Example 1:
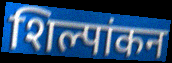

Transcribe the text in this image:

शिल्पांकन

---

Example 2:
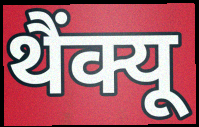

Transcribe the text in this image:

थैंक्यू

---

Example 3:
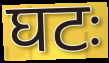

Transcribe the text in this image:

घटः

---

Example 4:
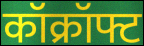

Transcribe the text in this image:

कॉक्रॉफ्ट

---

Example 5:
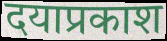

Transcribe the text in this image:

दयाप्रकाश